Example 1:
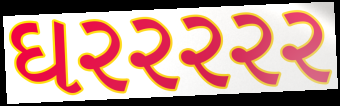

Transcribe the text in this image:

ઘરરરરર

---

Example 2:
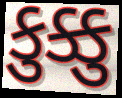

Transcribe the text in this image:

કુક્કુ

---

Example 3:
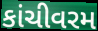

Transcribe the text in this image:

કાંચીવરમ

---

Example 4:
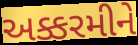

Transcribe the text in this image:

અક્કરમીને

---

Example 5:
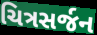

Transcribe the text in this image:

ચિત્રસર્જન